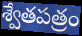
శ్వేతపత్రం